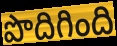
పొదిగింది